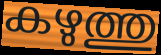
കഴുത്തു